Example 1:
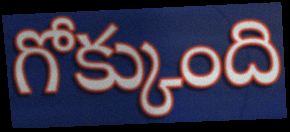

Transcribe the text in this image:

గోక్కుంది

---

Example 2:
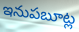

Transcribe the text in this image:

ఇనుపబూట్ల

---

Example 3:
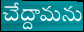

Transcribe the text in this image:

చేద్దామను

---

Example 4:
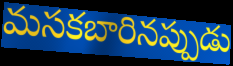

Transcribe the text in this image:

మసకబారినప్పుడు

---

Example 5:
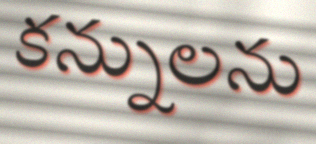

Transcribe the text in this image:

కన్నులను